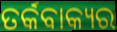
ତର୍କବାକ୍ୟର